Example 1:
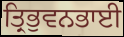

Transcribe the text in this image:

ਤ੍ਰਿਭੁਵਨਭਾਈ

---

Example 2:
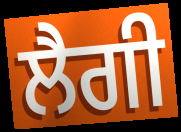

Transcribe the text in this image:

ਲੈਗੀ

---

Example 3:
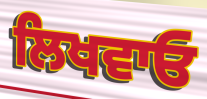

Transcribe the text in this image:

ਲਿਖਵਾਓ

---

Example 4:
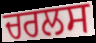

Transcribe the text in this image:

ਚਰਲਸ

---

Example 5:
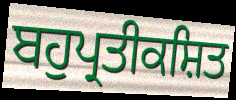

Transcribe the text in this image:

ਬਹੁਪ੍ਰਤੀਕਸ਼ਿਤ